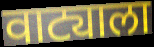
वाट्याला